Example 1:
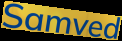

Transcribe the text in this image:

Samved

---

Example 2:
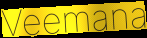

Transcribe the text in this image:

Veemana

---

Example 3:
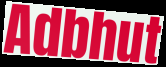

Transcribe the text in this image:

Adbhut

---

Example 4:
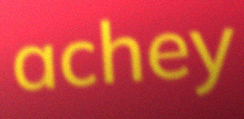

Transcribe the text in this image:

achey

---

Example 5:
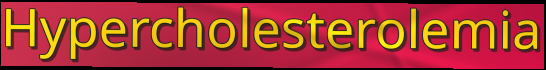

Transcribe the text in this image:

Hypercholesterolemia